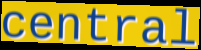
central